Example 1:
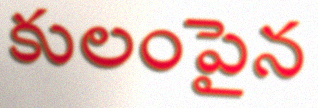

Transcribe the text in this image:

కులంపైన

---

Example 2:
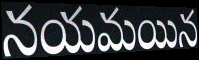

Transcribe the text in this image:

నయమయిన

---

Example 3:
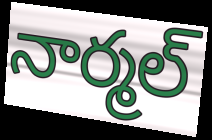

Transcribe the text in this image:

నార్మల్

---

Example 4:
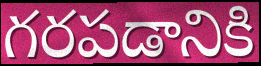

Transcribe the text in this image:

గరపడానికి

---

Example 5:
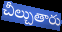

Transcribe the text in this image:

చీల్చుతారు